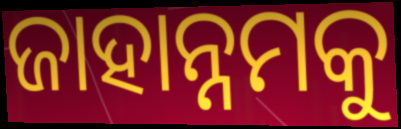
ଜାହାନ୍ନମକୁ